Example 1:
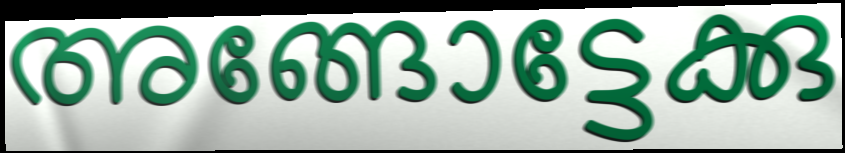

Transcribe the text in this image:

അങ്ങോട്ടേക്കു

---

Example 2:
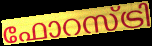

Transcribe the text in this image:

ഫോറസ്ട്രി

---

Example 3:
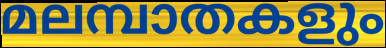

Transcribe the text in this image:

മലമ്പാതകളും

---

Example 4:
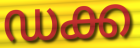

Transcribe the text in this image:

ഡക്ക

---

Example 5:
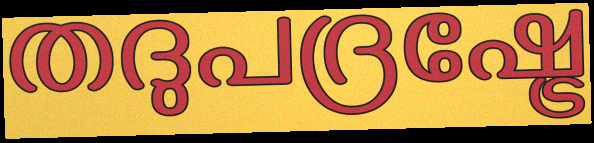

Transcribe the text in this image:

തദുപദ്രഷ്ട്രേ